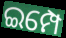
ଇମ୍ପେ